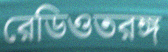
রেডিওতরঙ্গ